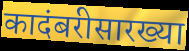
कादंबरीसारख्या